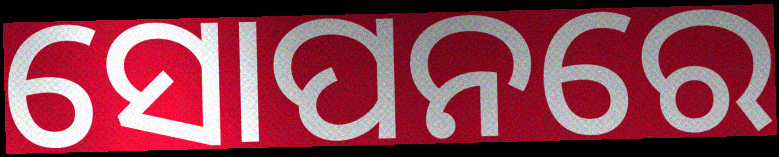
ସୋପନରେ